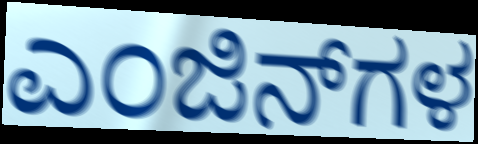
ಎಂಜಿನ್‌ಗಳ